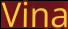
Vina